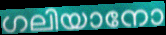
ഗലിയാനോ